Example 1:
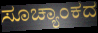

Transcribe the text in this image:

ಸೂಚ್ಯಾಂಕದ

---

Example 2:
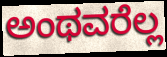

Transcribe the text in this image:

ಅಂಥವರೆಲ್ಲ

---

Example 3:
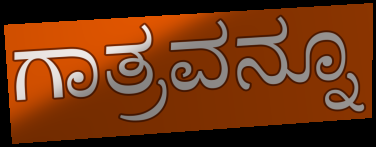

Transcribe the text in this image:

ಗಾತ್ರವನ್ನೂ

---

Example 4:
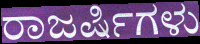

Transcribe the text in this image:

ರಾಜರ್ಷಿಗಳು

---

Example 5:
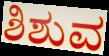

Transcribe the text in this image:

ಶಿಶುವ